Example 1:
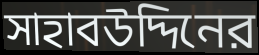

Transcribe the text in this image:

সাহাবউদ্দিনের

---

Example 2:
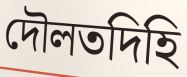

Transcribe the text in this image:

দৌলতদিহি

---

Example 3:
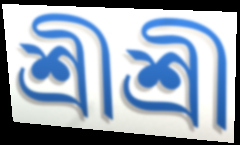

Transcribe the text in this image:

শ্রীশ্রী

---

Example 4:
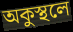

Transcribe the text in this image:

অকুস্থলে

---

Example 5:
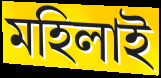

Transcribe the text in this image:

মহিলাই